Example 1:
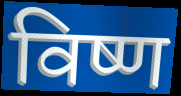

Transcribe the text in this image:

विष्ण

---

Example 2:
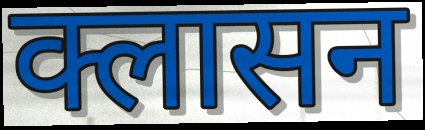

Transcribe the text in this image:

क्लासन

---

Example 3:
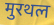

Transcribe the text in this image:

मुरथल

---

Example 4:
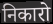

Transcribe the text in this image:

निकारो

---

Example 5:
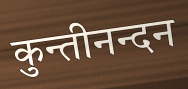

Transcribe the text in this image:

कुन्तीनन्दन